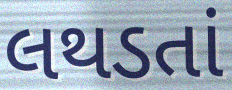
લથડતાં